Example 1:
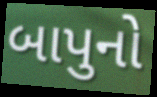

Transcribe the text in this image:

બાપુનો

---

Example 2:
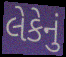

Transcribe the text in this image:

લેકેનું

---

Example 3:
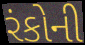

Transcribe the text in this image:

રંકોની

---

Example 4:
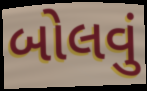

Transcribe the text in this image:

બોલવું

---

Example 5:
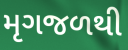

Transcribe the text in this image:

મૃગજળથી